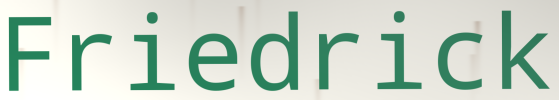
Friedrick